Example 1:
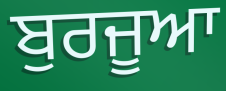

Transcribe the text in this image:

ਬੁਰਜੂਆ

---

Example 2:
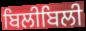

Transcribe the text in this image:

ਬਿਲੀਬਿਲੀ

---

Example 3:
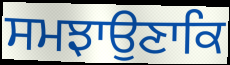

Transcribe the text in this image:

ਸਮਝਾਉਣਾਕਿ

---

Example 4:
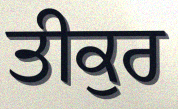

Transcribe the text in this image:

ਤੀਕੁਰ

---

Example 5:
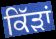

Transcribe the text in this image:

ਕਿੱੜਾਂ